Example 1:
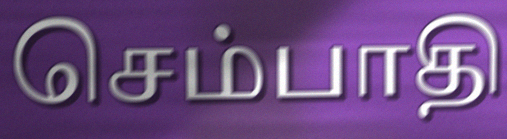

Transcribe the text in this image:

செம்பாதி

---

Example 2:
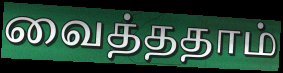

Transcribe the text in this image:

வைத்ததாம்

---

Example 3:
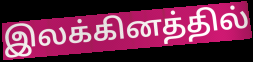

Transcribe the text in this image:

இலக்கினத்தில்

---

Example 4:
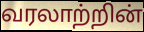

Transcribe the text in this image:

வரலாற்றின்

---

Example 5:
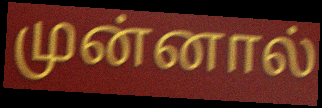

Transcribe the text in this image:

முன்னால்